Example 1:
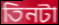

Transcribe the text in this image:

তিনটা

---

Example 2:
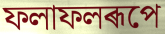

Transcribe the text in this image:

ফলাফলৰূপে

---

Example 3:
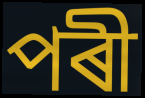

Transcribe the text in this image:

পৰী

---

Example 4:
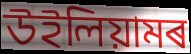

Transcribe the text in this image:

উইলিয়ামৰ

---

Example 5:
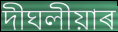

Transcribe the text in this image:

দীঘলীয়াৰ